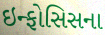
ઇન્ફોસિસના